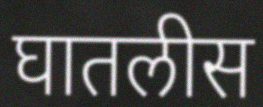
घातलीस